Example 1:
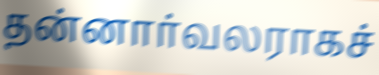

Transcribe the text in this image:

தன்னார்வலராகச்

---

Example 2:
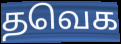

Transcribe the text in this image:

தவெக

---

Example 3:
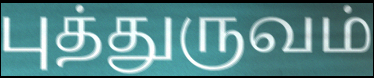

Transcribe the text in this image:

புத்துருவம்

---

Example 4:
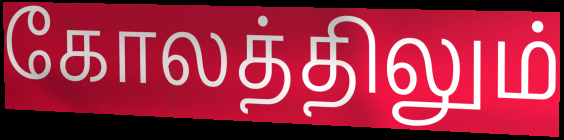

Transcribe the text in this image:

கோலத்திலும்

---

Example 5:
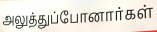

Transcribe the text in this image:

அலுத்துப்போனார்கள்